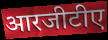
आरजीटीए